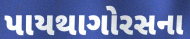
પાયથાગોરસના